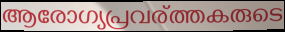
ആരോഗ്യപ്രവര്ത്തകരുടെ